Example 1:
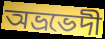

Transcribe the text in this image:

অভ্রভেদী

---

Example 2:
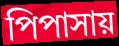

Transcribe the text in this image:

পিপাসায়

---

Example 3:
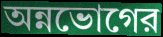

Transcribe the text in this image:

অন্নভোগের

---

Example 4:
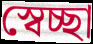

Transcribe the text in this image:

স্বেচ্ছা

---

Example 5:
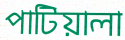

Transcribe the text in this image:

পাটিয়ালা